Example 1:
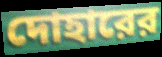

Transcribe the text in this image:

দোহারের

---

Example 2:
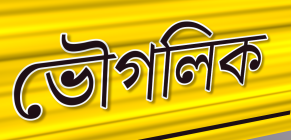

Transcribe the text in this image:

ভৌগলিক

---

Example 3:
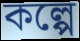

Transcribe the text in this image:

কল্পে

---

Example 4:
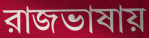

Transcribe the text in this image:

রাজভাষায়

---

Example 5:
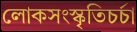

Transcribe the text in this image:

লোকসংস্কৃতিচর্চা